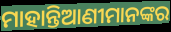
ମାହାନ୍ତିଆଣୀମାନଙ୍କର